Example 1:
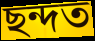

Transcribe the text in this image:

ছন্দত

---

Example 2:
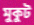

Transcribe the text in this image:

মুকুট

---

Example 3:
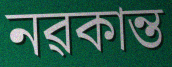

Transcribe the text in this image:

নৱকান্ত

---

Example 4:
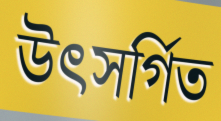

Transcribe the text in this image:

উৎসৰ্গিত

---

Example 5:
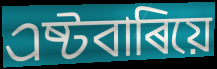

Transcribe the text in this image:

এষ্টবাৰিয়ে